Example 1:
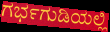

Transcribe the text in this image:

ಗರ್ಭಗುಡಿಯಲ್ಲಿ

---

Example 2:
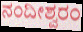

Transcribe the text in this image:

ನಂದೀಶ್ವರಂ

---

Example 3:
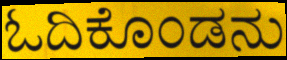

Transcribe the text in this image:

ಓದಿಕೊಂಡನು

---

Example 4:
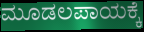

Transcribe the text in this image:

ಮೂಡಲಪಾಯಕ್ಕೆ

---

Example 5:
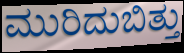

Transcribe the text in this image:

ಮುರಿದುಬಿತ್ತು